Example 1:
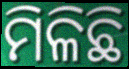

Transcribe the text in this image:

ମିଳିଛି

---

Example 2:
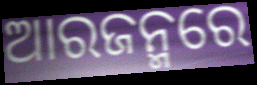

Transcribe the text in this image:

ଆରଜନ୍ମରେ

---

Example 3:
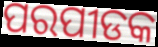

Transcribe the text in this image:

ପରପୀଡକ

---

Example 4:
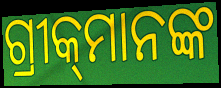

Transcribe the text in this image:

ଗ୍ରୀକ୍‌ମାନଙ୍କ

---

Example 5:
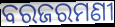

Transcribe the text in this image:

ବରଜରମଣୀ